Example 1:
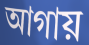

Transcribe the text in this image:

আগায়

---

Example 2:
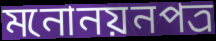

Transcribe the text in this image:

মনোনয়নপত্র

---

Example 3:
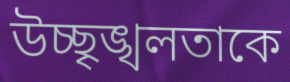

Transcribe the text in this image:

উচ্ছৃঙ্খলতাকে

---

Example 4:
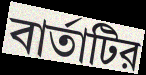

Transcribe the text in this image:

বার্তাটির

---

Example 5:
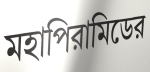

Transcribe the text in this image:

মহাপিরামিডের